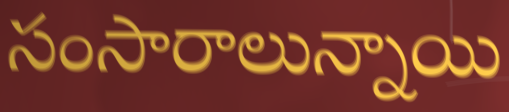
సంసారాలున్నాయి